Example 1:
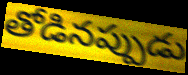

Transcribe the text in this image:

తోడినప్పుడు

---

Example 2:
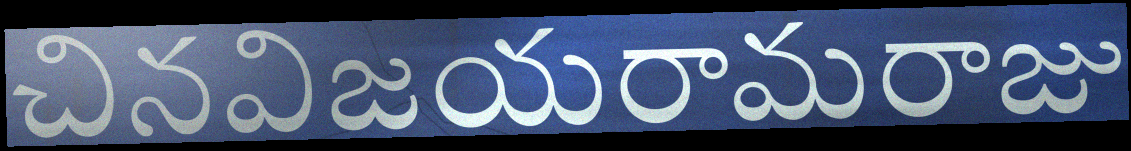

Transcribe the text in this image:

చినవిజయరామరాజు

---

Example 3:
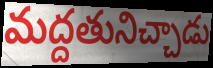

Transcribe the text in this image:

మద్దతునిచ్చాడు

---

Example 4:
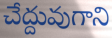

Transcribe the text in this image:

చేద్దువుగాని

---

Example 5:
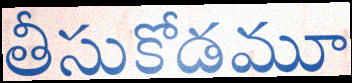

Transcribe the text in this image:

తీసుకోడమూ